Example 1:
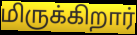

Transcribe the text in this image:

மிருக்கிறார்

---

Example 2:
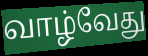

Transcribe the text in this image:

வாழ்வேது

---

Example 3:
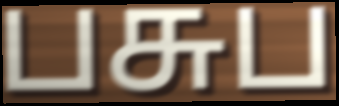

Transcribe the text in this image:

பசுப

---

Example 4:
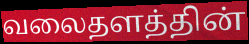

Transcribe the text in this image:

வலைதளத்தின்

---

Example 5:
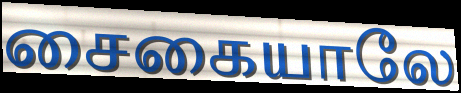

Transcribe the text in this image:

சைகையாலே